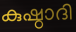
കുഷ്ഠാദി